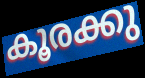
കൂരക്കു